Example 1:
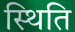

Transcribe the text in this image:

स्‍थिति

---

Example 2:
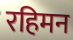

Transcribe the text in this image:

रहिमन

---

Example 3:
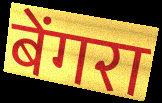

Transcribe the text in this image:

बेंगरा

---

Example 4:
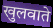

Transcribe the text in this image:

खुलवाते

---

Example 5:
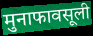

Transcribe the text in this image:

मुनाफावसूली